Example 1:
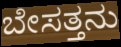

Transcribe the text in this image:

ಬೇಸತ್ತನು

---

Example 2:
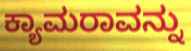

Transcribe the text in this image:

ಕ್ಯಾಮರಾವನ್ನು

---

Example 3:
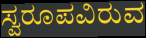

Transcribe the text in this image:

ಸ್ವರೂಪವಿರುವ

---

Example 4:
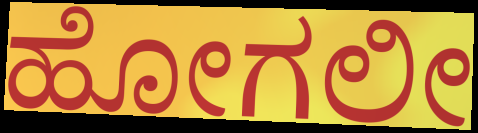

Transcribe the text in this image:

ಹೋಗಲೀ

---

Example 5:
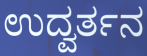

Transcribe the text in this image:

ಉದ್ವರ್ತನ